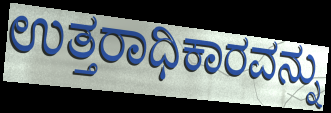
ಉತ್ತರಾಧಿಕಾರವನ್ನು